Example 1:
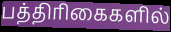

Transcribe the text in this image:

பத்திரிகைகளில்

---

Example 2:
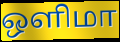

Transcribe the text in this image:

ஒளிமா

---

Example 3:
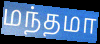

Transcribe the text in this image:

மந்தமா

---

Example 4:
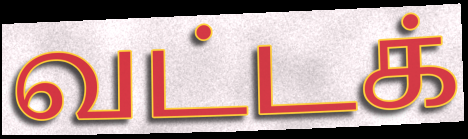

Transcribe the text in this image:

வட்டக்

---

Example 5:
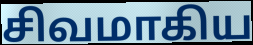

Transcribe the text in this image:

சிவமாகிய